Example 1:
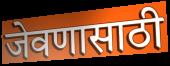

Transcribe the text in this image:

जेवणासाठी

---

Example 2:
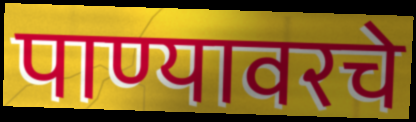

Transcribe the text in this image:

पाण्यावरचे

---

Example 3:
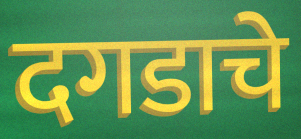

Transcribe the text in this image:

दगडाचे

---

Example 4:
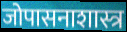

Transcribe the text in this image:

जोपासनाशास्त्र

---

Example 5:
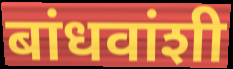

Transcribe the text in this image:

बांधवांशी